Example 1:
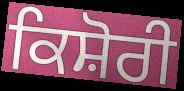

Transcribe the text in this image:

ਕਿਸ਼ੋਰੀ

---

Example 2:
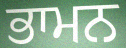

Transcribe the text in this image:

ਭਾਮਨ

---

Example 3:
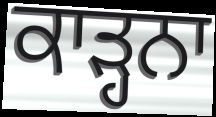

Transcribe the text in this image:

ਕਾੜ੍ਹਨਾ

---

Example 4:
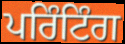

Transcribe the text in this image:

ਪਰਿੰਟਿੰਗ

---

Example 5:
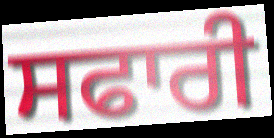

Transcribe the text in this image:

ਸਫਾਰੀ